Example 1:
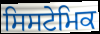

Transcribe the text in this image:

ਸਿਸਟੇਮਿਕ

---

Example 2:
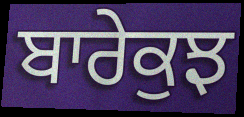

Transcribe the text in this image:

ਬਾਰੇਕੁਝ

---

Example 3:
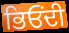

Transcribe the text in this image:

ਭਿਓਂਦੀ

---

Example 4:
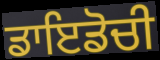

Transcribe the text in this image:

ਡਾਇਡੋਚੀ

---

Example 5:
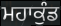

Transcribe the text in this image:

ਮਹਾਕੁੰਡ